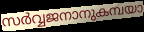
സർവ്വജനാനുകമ്പയാ